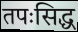
तपःसिद्ध